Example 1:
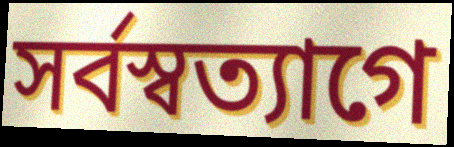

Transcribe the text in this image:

সর্বস্বত্যাগে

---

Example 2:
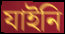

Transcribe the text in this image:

যাইনি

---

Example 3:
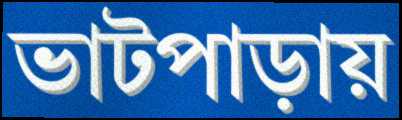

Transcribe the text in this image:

ভাটপাড়ায়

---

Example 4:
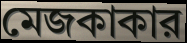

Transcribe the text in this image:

মেজকাকার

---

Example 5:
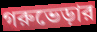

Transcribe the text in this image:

গরুভেড়ার